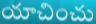
యాచించు